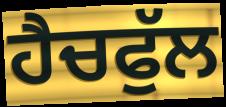
ਹੈਚਫੁੱਲ